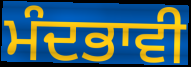
ਮੰਦਭਾਵੀ